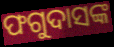
ଫଗୁଦାସଙ୍କ